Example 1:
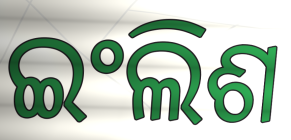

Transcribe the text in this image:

ଇଂଲିଶ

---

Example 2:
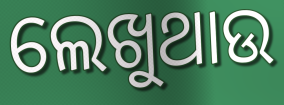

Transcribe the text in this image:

ଲେଖୁଥାଉ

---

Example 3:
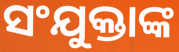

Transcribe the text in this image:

ସଂଯୁକ୍ତାଙ୍କ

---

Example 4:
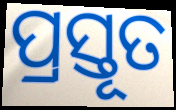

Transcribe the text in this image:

ପ୍ରସ୍ତୂତ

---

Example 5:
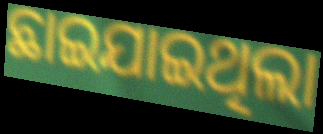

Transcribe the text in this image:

ଛାଇଯାଇଥିଲା